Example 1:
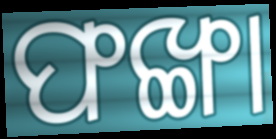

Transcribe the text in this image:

ଫଙ୍ଖା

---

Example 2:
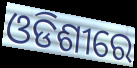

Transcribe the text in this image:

ଓଡିଶୀରେ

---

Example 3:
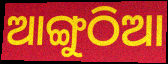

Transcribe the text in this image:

ଆଙ୍ଗୁଠିଆ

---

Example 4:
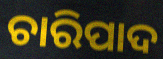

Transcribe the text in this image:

ଚାରିପାଦ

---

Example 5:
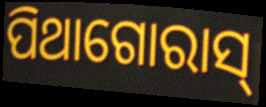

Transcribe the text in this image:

ପିଥାଗୋରାସ୍